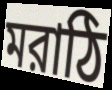
মরাঠি